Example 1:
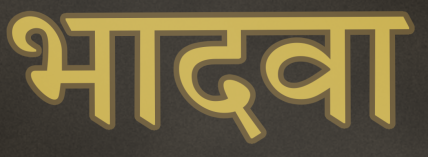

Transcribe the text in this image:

भादवा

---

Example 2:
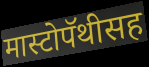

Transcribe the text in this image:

मास्टोपॅथीसह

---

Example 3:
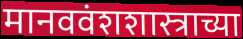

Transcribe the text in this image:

मानववंशशास्त्राच्या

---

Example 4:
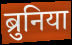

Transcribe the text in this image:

ब्रुनिया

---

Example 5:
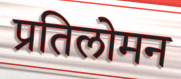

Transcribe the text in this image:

प्रतिलोमन